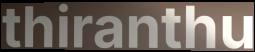
thiranthu